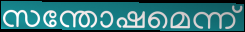
സന്തോഷമെന്ന്